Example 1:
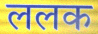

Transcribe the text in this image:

ललक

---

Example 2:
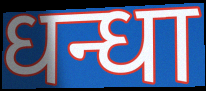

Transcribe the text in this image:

धन्धा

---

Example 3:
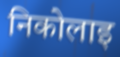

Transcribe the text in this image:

निकोलाइ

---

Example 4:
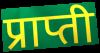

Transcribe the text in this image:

प्राप्ती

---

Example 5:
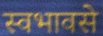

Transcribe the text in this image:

स्वभावसे